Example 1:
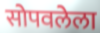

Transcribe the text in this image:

सोपवलेला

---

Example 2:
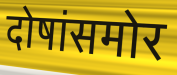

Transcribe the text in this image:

दोषांसमोर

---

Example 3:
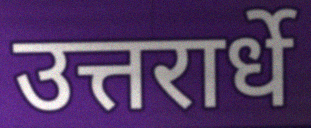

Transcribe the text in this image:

उत्तरार्धे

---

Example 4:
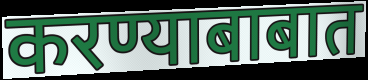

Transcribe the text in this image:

करण्याबाबात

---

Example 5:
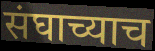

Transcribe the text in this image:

संघाच्याच